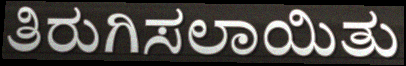
ತಿರುಗಿಸಲಾಯಿತು